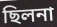
ছিলনা